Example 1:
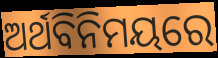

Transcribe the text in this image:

ଅର୍ଥବିନିମୟରେ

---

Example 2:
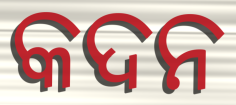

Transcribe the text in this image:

କଦନ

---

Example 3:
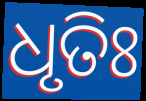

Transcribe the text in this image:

ଧୃତିଃ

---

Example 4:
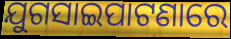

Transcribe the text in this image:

ଯୁଗସାଇପାଟଣାରେ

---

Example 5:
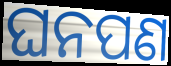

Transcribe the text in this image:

ଘନପଣ